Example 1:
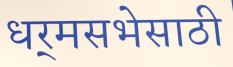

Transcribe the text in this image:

धर्मसभेसाठी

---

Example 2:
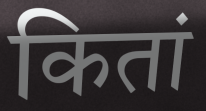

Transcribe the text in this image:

कितां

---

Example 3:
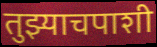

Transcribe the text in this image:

तुझ्याचपाशी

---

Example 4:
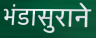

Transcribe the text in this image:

भंडासुराने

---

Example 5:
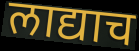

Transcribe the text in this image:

लाद्याच